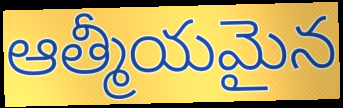
ఆత్మీయమైన